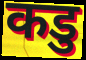
कडु